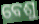
ବେଶୁ